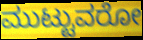
ಮುಟ್ಟುವರೋ